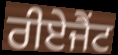
ਰੀਏਜੈਂਟ